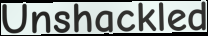
Unshackled